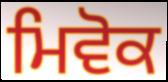
ਮਿਵੋਕ